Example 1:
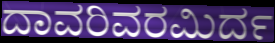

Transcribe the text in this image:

ದಾವರಿವರಮಿರ್ದ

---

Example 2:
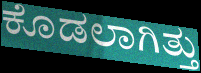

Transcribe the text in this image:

ಕೊಡಲಾಗಿತ್ತು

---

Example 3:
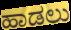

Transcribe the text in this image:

ಹಾಡಲು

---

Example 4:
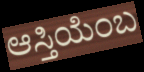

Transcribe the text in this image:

ಆಸ್ತಿಯೆಂಬ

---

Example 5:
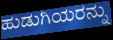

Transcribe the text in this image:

ಹುಡುಗಿಯರನ್ನು